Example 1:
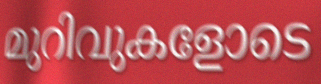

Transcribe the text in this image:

മുറിവുകളോടെ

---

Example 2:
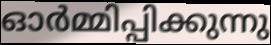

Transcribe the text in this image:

ഓർമ്മിപ്പിക്കുന്നു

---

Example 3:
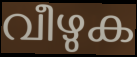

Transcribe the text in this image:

വീഴുക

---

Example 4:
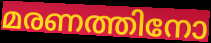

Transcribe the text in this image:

മരണത്തിനോ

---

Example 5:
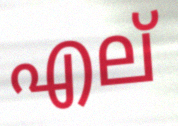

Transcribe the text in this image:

എല്